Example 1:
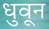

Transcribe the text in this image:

धुवून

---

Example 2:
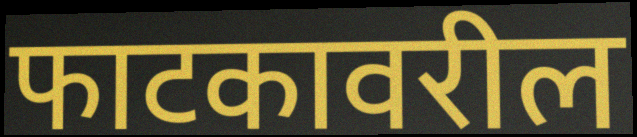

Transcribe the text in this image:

फाटकावरील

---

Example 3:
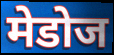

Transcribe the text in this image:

मेडोज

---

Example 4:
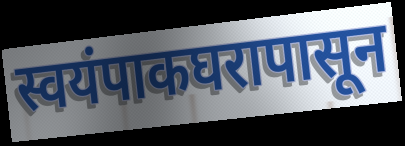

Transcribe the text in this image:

स्वयंपाकघरापासून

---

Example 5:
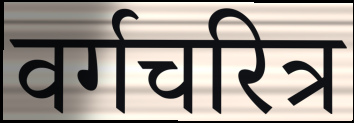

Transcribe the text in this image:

वर्गचरित्र